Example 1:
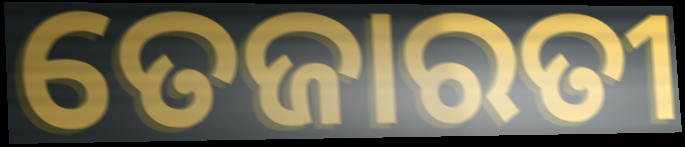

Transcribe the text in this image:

ତେଜାରତୀ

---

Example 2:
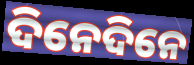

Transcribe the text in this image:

ଦିନେଦିନେ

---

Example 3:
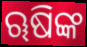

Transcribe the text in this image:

ୠଷିଙ୍କ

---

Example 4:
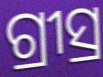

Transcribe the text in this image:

ଗ୍ରୀସ୍ର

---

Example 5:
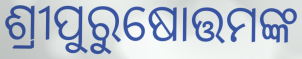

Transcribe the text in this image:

ଶ୍ରୀପୁରୁଷୋତ୍ତମଙ୍କ